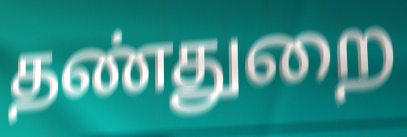
தண்துறை